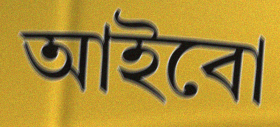
আইবো